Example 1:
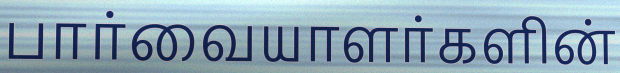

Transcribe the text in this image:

பார்வையாளர்களின்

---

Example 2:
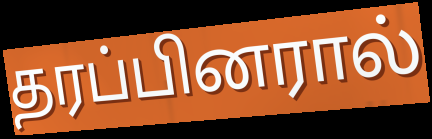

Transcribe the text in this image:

தரப்பினரால்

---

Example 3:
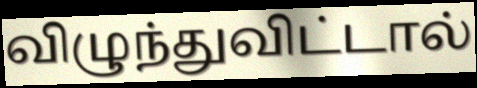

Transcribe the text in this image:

விழுந்துவிட்டால்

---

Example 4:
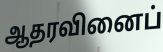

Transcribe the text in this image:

ஆதரவினைப்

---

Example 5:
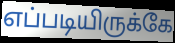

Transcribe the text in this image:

எப்படியிருக்கே